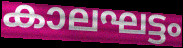
കാലഘട്ടം